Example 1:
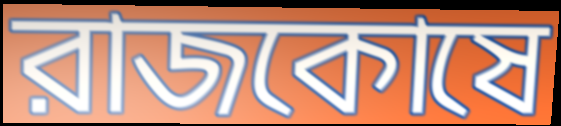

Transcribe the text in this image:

রাজকোষে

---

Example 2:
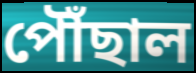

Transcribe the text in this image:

পৌঁছাল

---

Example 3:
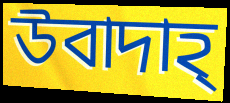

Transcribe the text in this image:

উবাদাহ্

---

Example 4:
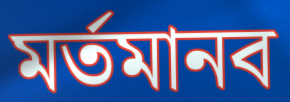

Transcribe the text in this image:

মর্তমানব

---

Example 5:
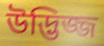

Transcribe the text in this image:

উদ্ভিজ্জ